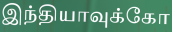
இந்தியாவுக்கோ